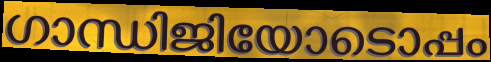
ഗാന്ധിജിയോടൊപ്പം